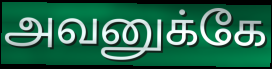
அவனுக்கே